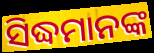
ସିଦ୍ଧମାନଙ୍କ